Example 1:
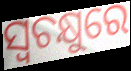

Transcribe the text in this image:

ସ୍ୱଚକ୍ଷୁରେ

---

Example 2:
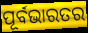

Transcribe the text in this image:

ପୂର୍ବଭାରତର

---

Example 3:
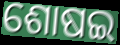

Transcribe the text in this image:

ଶୋଷଇ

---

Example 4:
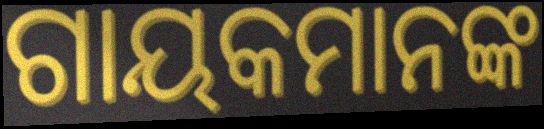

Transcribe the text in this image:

ଗାୟକମାନଙ୍କ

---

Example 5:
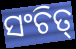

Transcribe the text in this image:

ସଂଚିତ୍